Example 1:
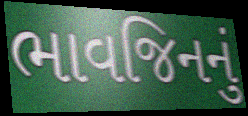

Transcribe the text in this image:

ભાવજિનનું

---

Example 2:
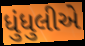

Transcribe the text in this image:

ધુંધુલીએ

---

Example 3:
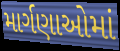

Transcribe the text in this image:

માર્ગણાઓમાં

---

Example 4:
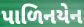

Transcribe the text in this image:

પાળિનયેન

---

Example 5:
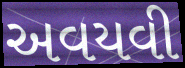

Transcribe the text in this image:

અવયવી